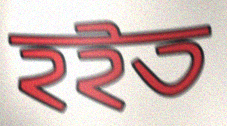
হইত